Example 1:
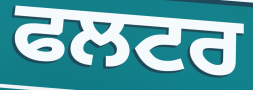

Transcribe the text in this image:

ਫਲਟਰ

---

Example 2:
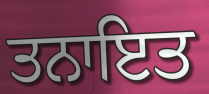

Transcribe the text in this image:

ਤਨਾਇਤ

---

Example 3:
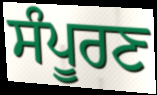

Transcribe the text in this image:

ਸੰਪੂਰਣ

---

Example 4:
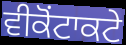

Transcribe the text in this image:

ਵੀਕੋਂਟਾਕਟੇ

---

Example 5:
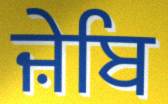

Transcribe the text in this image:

ਜ਼ੇਬਿ